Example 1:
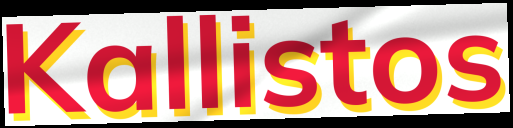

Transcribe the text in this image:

Kallistos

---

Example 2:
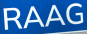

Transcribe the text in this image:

RAAG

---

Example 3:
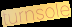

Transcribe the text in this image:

turnsole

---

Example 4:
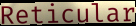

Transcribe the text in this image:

Reticular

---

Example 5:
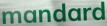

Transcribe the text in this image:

mandard